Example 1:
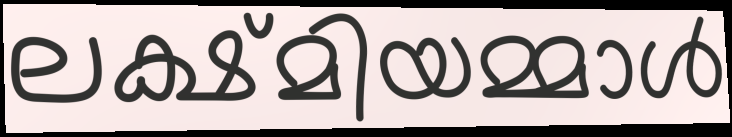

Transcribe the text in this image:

ലക്ഷ്മിയമ്മാൾ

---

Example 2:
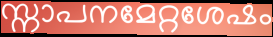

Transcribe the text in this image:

സ്നാപനമേറ്റശേഷം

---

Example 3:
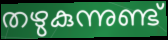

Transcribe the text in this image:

തഴുകുന്നുണ്ട്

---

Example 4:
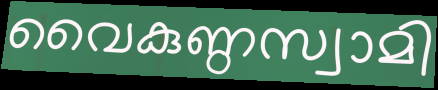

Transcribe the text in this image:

വൈകുണ്ഠസ്വാമി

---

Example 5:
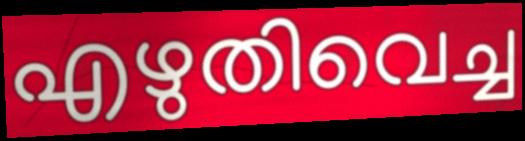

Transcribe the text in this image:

എഴുതിവെച്ച